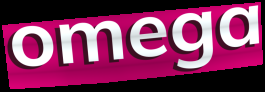
omega